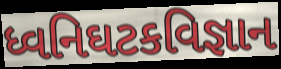
ધ્વનિઘટકવિજ્ઞાન